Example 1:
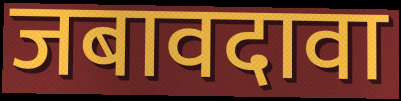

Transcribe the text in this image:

जबावदावा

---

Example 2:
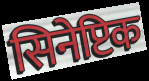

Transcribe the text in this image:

सिनेप्टिक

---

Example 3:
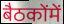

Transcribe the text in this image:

बैठकोंमें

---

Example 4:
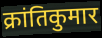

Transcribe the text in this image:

क्रांतिकुमार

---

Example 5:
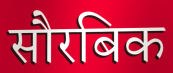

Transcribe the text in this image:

सौरबिक